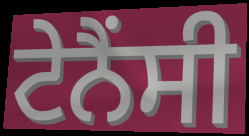
ਟੇਨੈਂਸੀ